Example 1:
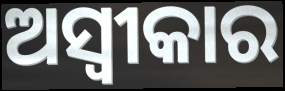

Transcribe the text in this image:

ଅସ୍ବୀକାର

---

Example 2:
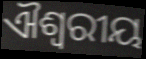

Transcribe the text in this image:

ଐଶ୍ୱରୀୟ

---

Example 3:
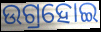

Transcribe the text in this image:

ଉଗ୍ରହୋଇ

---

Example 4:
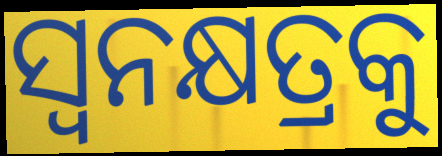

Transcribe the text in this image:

ସ୍ୱନକ୍ଷତ୍ରକୁ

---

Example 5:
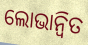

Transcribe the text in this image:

ଲୋଭାନ୍ୱିତ